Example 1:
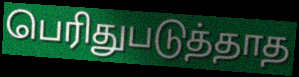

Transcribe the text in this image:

பெரிதுபடுத்தாத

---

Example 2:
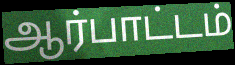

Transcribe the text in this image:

ஆர்பாட்டம்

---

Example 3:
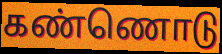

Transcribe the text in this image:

கண்ணொடு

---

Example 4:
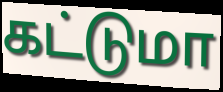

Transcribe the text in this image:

கட்டுமா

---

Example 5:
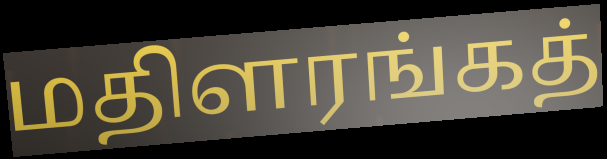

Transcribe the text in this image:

மதிளரங்கத்